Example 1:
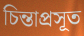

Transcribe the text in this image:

চিন্তাপ্রসূত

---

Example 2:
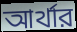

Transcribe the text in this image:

আর্থার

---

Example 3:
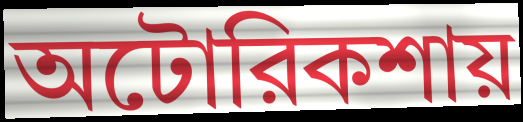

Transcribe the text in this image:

অটোরিকশায়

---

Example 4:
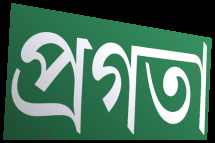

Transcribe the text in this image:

প্রগতা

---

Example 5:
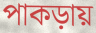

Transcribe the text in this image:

পাকড়ায়